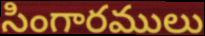
సింగారములు